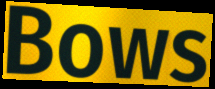
Bows